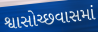
શ્વાસોચ્છવાસમાં